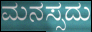
ಮನಸ್ಸದು